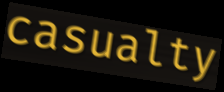
casualty